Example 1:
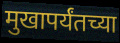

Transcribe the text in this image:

मुखापर्यंतच्या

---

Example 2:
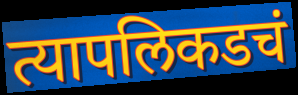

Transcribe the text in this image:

त्यापलिकडचं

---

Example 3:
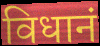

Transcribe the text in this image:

विधानं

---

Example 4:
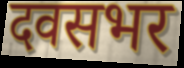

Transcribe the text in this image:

दवसभर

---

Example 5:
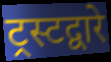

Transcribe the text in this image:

ट्रस्टद्वारे